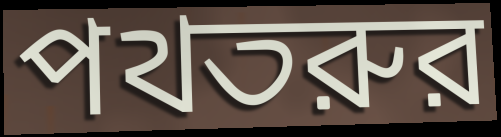
পথতরুর